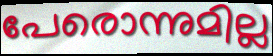
പേരൊന്നുമില്ല